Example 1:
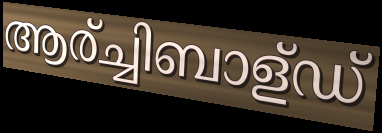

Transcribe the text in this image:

ആര്ച്ചിബാള്ഡ്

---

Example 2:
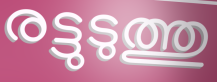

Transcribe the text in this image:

രട്ടുടുത്തു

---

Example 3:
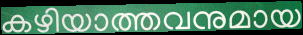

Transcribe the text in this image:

കഴിയാത്തവനുമായ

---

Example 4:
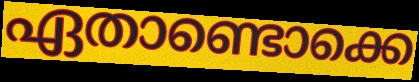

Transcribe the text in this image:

ഏതാണ്ടൊക്കെ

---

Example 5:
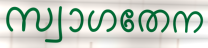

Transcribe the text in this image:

സ്വാഗതേന